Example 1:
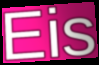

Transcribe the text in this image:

Eis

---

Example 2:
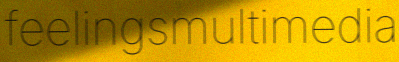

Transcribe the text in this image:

feelingsmultimedia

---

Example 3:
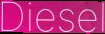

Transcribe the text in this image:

Diesel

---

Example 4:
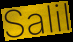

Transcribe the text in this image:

Salil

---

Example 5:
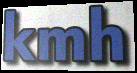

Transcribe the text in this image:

kmh